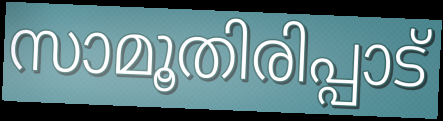
സാമൂതിരിപ്പാട്